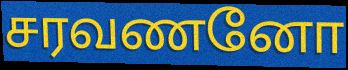
சரவணனோ